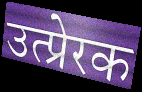
उत्प्रेरक